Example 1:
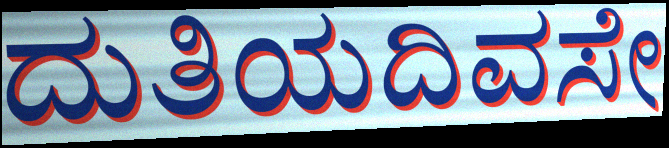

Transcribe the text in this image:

ದುತಿಯದಿವಸೇ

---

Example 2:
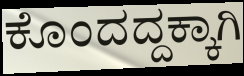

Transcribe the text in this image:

ಕೊಂದದ್ದಕ್ಕಾಗಿ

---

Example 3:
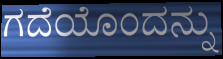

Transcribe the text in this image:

ಗದೆಯೊಂದನ್ನು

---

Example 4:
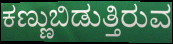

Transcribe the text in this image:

ಕಣ್ಣುಬಿಡುತ್ತಿರುವ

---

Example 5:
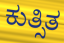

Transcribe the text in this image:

ಕುತ್ಸಿತ